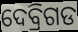
ଦେବ୍ରିଗଡ